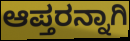
ಆಪ್ತರನ್ನಾಗಿ